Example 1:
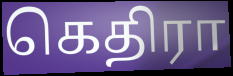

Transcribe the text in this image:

கெதிரா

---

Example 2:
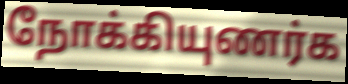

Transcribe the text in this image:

நோக்கியுணர்க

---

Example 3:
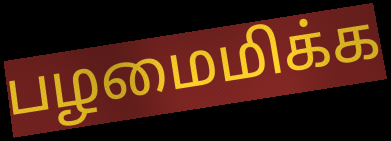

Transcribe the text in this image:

பழமைமிக்க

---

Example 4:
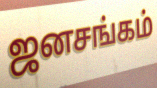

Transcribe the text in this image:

ஜனசங்கம்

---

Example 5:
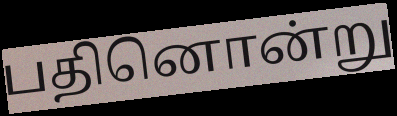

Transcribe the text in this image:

பதினொன்று